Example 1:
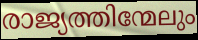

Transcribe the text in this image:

രാജ്യത്തിന്മേലും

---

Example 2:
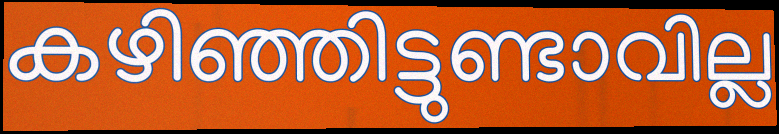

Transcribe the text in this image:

കഴിഞ്ഞിട്ടുണ്ടാവില്ല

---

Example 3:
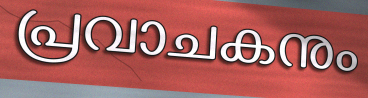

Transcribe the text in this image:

പ്രവാചകനും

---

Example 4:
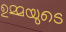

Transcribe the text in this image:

ഉമ്മയുടെ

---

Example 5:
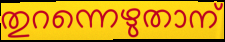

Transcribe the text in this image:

തുറന്നെഴുതാന്